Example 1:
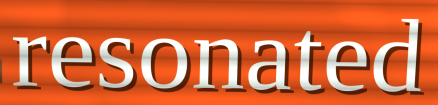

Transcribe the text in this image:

resonated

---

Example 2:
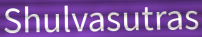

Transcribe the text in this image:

Shulvasutras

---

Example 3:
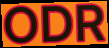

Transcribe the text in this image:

ODR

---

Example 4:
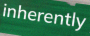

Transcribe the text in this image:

inherently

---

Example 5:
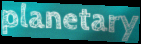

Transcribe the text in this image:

planetary